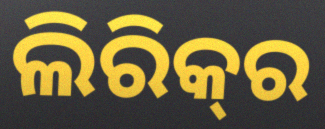
ଲିରିକ୍‍ର